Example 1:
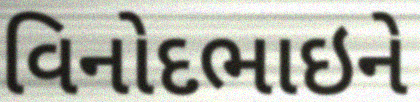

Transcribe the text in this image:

વિનોદભાઇને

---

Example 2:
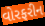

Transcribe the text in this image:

વોરફરીન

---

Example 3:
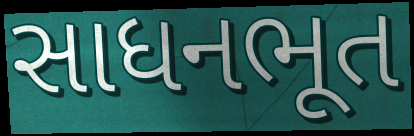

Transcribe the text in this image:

સાધનભૂત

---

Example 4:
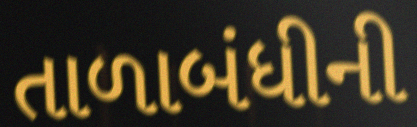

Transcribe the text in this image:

તાળાબંધીની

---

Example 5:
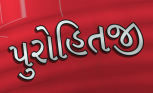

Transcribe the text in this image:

પુરોહિતજી